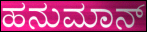
ಹನುಮಾನ್